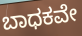
ಬಾಧಕವೇ